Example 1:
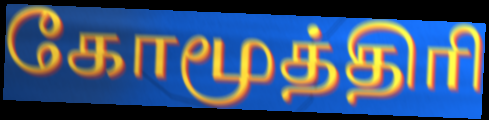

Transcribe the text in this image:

கோமூத்திரி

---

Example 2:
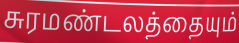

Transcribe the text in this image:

சுரமண்டலத்தையும்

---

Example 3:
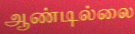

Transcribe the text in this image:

ஆண்டில்லை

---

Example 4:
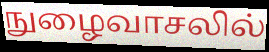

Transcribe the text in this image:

நுழைவாசலில்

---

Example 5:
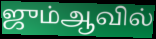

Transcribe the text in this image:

ஜும்ஆவில்